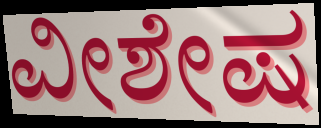
ವೀಶೇಷ